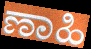
ಣಾಹಿ